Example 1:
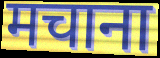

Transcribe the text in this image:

मचाना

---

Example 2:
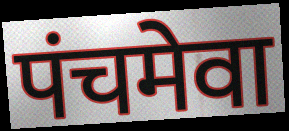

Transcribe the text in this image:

पंचमेवा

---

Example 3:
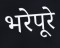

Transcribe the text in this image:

भरेपूरे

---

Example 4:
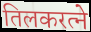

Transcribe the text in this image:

तिलकरत्ने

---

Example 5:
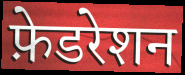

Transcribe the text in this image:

फ़ेडरेशन